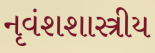
નૃવંશશાસ્ત્રીય